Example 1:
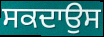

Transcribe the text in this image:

ਸਕਦਾਉਸ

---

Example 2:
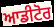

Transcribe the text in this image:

ਆਡੀਟੋਰ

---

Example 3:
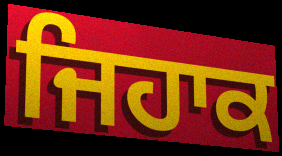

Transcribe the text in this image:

ਜਿਹਾਕ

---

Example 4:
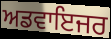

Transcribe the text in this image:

ਅਡਵਾਇਜਰ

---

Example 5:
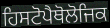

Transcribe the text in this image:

ਹਿਸਟੋਪੈਥੋਲੋਜਿਕ